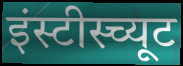
इंस्टीस्च्यूट